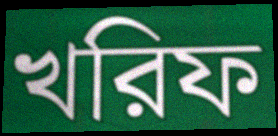
খরিফ